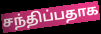
சந்திப்பதாக